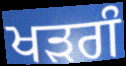
ਖੜਗੰ